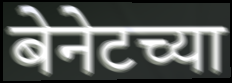
बेनेटच्या